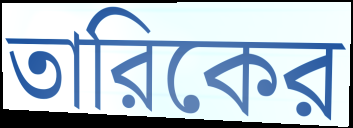
তারিকের